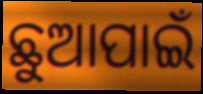
ଛୁଆପାଇଁ